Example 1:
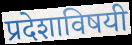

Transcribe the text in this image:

प्रदेशाविषयी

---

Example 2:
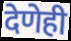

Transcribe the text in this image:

देणेही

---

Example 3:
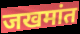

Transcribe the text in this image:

जखमांत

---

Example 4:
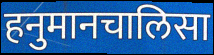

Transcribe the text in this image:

हनुमानचालिसा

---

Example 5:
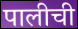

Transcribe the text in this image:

पालीची